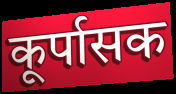
कूर्पासक